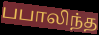
பபாலிந்த